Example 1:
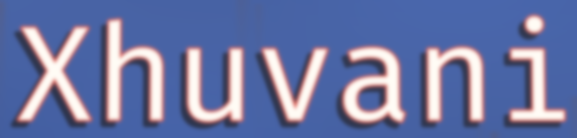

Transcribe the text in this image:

Xhuvani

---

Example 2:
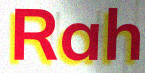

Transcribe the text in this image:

Rah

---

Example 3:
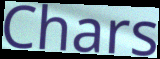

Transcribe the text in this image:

Chars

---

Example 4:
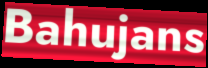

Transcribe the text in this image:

Bahujans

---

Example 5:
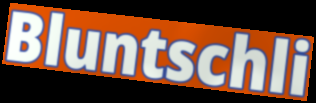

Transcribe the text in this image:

Bluntschli